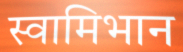
स्वामिभान